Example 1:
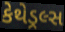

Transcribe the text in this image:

કેથેડ્રલ્સ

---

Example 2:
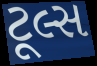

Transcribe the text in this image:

ટૂલ્સ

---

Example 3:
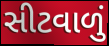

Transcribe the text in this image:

સીટવાળું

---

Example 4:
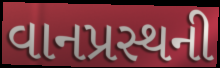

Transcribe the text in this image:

વાનપ્રસ્થની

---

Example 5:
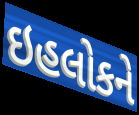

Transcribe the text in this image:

ઇહલોકને